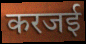
करजई